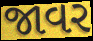
જાવર